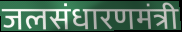
जलसंधारणमंत्री